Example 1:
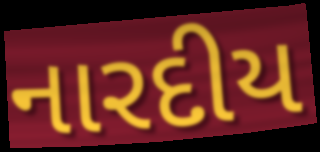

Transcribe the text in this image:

નારદીય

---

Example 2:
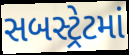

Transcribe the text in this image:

સબસ્ટ્રેટમાં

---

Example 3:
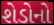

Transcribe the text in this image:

શેડોનો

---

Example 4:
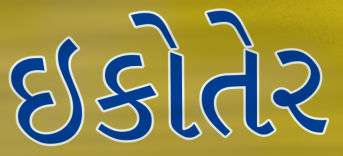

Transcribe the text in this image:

ઇકોતેર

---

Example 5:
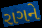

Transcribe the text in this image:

રાગને